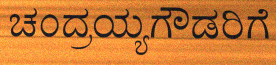
ಚಂದ್ರಯ್ಯಗೌಡರಿಗೆ